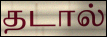
தடால்